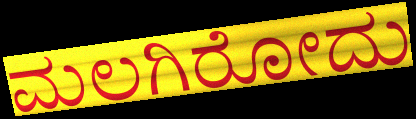
ಮಲಗಿರೋದು